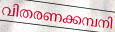
വിതരണക്കമ്പനി